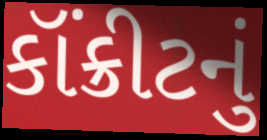
કૉંક્રીટનું